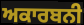
ਅਕਾਰਬਨੀ